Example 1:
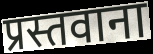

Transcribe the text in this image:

प्रस्तवाना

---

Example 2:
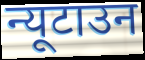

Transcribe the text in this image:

न्यूटाउन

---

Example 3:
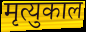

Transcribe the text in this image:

मृत्युकाल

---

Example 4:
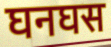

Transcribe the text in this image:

घनघस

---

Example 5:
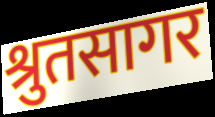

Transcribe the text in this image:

श्रुतसागर